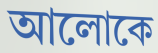
আলোকে